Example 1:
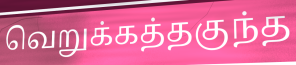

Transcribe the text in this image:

வெறுக்கத்தகுந்த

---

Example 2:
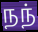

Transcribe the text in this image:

நந்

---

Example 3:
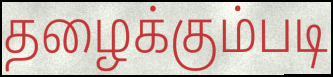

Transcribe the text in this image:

தழைக்கும்படி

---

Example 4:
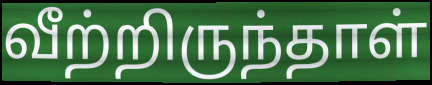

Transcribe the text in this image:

வீற்றிருந்தாள்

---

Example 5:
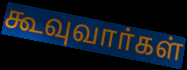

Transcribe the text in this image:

கூவுவார்கள்